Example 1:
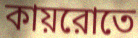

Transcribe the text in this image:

কায়রোতে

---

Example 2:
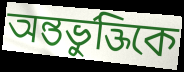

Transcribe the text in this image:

অন্তর্ভুক্তিকে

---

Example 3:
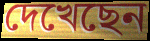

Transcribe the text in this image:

দেখেছেন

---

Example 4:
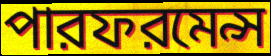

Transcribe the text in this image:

পারফরমেন্স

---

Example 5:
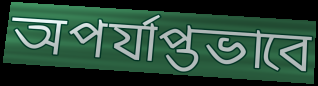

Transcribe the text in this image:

অপর্যাপ্তভাবে